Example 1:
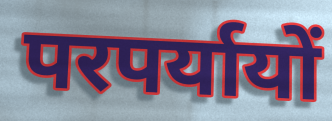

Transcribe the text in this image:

परपर्यायों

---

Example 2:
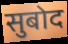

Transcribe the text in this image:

सुबोद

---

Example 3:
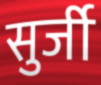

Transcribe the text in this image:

सुर्जी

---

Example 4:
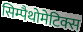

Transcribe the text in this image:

सिम्पैथोमेटिक्स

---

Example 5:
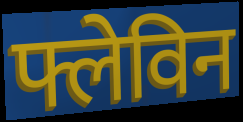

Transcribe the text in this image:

फ्लेविन